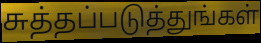
சுத்தப்படுத்துங்கள்